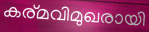
കര്മവിമുഖരായി